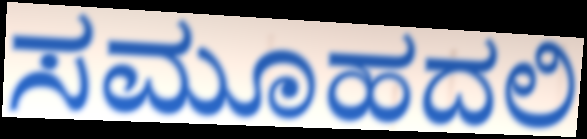
ಸಮೂಹದಲಿ